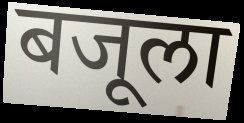
बजूला